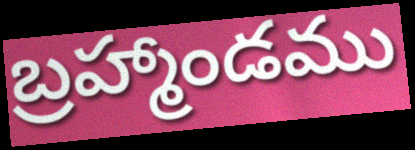
బ్రహ్మాండము